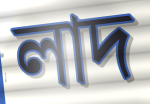
লাদ